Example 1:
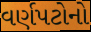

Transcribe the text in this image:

વર્ણપટોનો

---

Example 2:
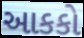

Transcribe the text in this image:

આકકો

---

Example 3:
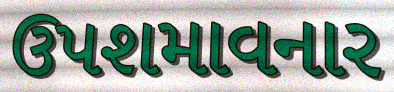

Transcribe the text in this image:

ઉપશમાવનાર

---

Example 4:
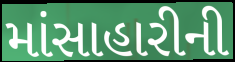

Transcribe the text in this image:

માંસાહારીની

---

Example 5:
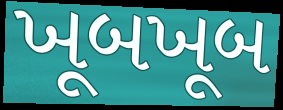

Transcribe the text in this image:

ખૂબખૂબ